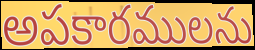
అపకారములను